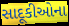
સાદૂકીઓના